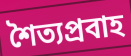
শৈত্যপ্রবাহ